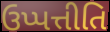
ઉપ્પત્તીતિ